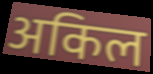
अकिल